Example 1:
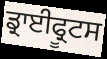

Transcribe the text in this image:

ਡ੍ਰਾਈਫ੍ਰੂਟਸ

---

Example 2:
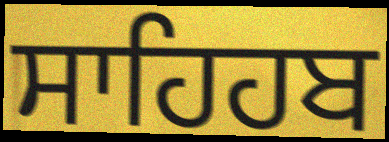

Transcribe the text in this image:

ਸਾਹਿਹਬ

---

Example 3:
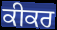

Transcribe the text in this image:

ਕੀਕਰ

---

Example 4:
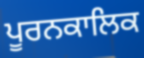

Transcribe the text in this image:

ਪੂਰਨਕਾਲਿਕ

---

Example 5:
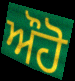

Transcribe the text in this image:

ਔਹੋ